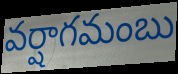
వర్షాగమంబు